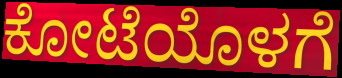
ಕೋಟೆಯೊಳಗೆ